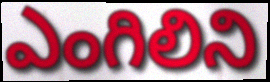
ఎంగిలిని